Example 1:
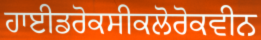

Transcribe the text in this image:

ਹਾਈਡਰੋਕਸੀਕਲੋਰੋਕਵੀਨ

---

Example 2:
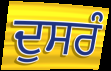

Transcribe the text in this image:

ਦੁਸਰੰ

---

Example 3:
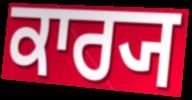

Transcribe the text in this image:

ਕਾਰ੍ਯ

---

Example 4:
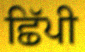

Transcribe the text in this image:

ਛਿੱਪੀ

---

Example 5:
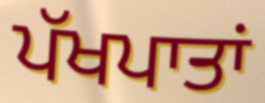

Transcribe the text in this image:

ਪੱਖਪਾਤਾਂ